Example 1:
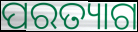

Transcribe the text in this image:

ପରତ୍ୟାଗ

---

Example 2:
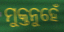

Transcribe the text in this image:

ମୁକ୍ତନୁହେଁ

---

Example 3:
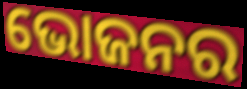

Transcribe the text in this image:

ଭୋଜନର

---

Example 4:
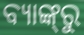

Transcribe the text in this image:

ବ୍ୟାଙ୍କ୍‌ରୁ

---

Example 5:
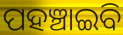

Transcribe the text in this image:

ପହଞ୍ଚାଇବି